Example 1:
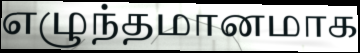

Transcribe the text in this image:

எழுந்தமானமாக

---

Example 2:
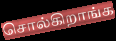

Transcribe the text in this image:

சொல்கிறாங்க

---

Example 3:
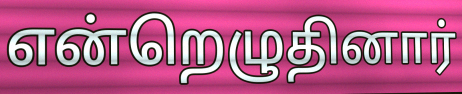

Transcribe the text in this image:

என்றெழுதினார்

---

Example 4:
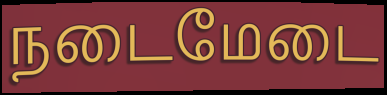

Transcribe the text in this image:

நடைமேடை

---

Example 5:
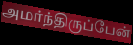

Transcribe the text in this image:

அமர்ந்திருப்பேன்